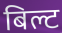
बिल्ट